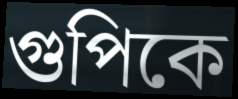
গুপিকে